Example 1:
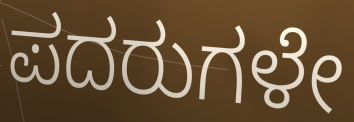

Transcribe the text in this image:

ಪದರುಗಳೇ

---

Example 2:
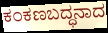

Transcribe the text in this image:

ಕಂಕಣಬದ್ಧನಾದ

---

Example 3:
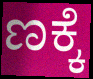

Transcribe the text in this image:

ಣಕ್ಕೆ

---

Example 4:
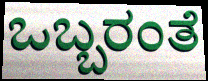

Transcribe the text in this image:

ಒಬ್ಬರಂತೆ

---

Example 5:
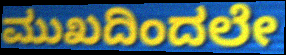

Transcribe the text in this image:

ಮುಖದಿಂದಲೇ